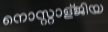
നൊസ്റ്റാള്ജിയ